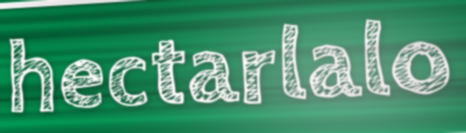
hectarlalo